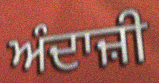
ਅੰਦਾਜ਼ੀ